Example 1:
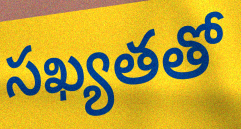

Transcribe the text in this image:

సఖ్యతతో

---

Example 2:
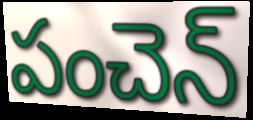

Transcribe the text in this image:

పంచెన్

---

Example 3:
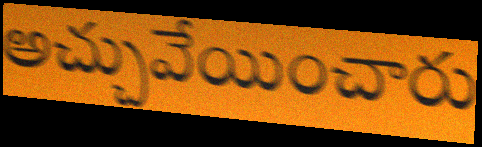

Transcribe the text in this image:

అచ్చువేయించారు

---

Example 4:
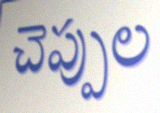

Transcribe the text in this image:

చెప్పుల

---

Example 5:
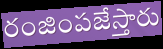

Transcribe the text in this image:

రంజింపజేస్తారు